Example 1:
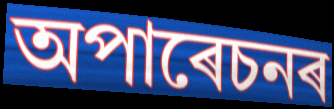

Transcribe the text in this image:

অপাৰেচনৰ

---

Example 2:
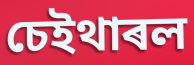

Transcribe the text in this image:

চেইথাৰল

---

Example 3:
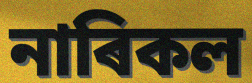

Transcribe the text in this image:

নাৰিকল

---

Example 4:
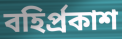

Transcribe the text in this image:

বহিৰ্প্ৰকাশ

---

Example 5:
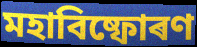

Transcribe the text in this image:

মহাবিষ্ফোৰণ